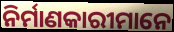
ନିର୍ମାଣକାରୀମାନେ